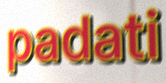
padati